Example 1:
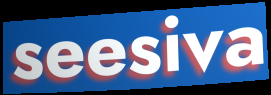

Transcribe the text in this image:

seesiva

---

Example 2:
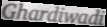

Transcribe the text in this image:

Ghardiwadi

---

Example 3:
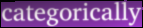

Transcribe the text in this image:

categorically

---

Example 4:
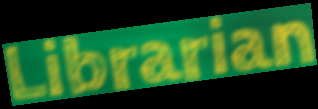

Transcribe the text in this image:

Librarian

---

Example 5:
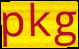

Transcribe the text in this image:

pkg